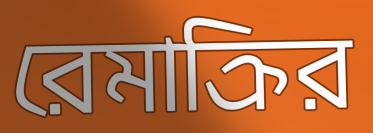
রেমাক্রির